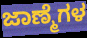
ಜಾಣ್ಮೆಗಳ